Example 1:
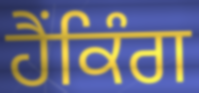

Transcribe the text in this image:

ਹੈਂਕਿੰਗ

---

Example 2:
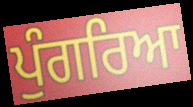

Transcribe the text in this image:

ਪੁੰਗਰਿਆ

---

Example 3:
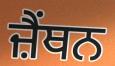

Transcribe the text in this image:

ਜ਼ੈਂਥਨ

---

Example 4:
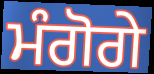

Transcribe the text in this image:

ਮੰਗੋਗੇ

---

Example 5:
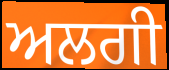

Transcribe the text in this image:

ਅਲਗੀ